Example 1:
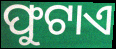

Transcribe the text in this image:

ଫୁଟାଏ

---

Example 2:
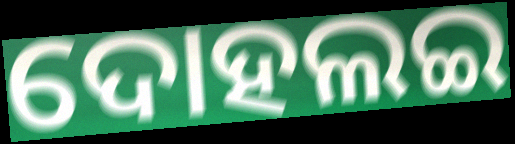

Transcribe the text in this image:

ଦୋହଲଇ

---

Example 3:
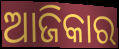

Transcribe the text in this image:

ଆଜିକାର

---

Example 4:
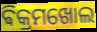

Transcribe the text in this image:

ଵିକ୍ରମଖୋଲ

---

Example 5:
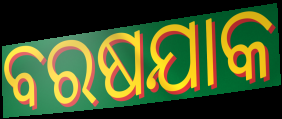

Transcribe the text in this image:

ବରଷଯାକ